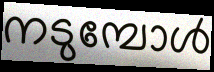
നടുമ്പോൾ